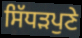
ਸਿੱਧੜਪੁਣੇ